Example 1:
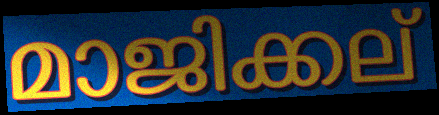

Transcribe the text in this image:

മാജിക്കല്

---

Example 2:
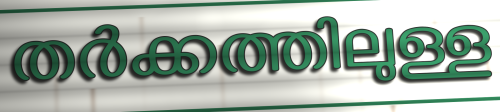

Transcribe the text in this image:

തർക്കത്തിലുള്ള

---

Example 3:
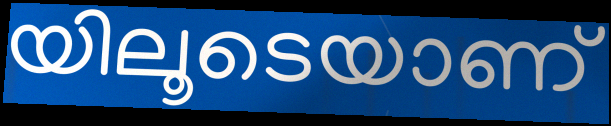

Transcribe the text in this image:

യിലൂടെയാണ്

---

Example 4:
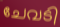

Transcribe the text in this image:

ചേവടി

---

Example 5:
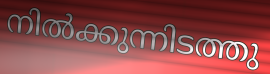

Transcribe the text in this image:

നിൽക്കുന്നിടത്തു